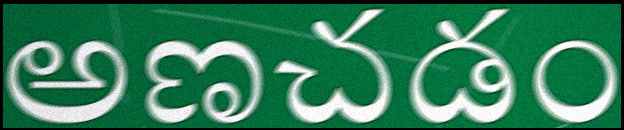
అణచడం